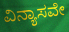
ವಿನ್ಯಾಸವೇ